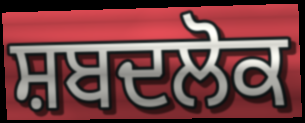
ਸ਼ਬਦਲੋਕ